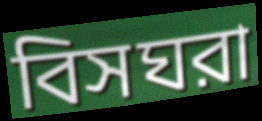
বিসঘরা